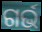
ଗର୍ଭ